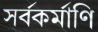
সর্বকর্মাণি